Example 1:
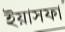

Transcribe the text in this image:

ইয়াসফা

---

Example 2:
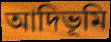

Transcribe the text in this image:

আদিভূমি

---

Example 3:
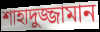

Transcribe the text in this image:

শাহাদুজ্জামান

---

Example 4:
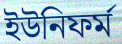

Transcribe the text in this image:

ইউনিফর্ম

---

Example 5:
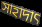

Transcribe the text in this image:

সাহাদাৎ